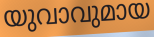
യുവാവുമായ